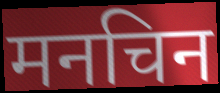
मनचिन